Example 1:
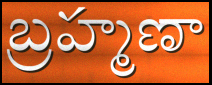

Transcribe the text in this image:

బ్రహ్మణా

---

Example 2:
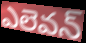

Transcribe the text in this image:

ఎలెవన్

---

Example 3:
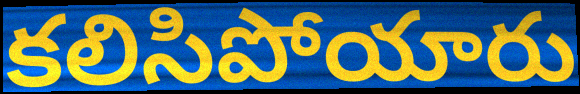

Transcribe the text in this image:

కలిసిపోయారు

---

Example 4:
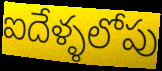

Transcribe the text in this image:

ఐదేళ్ళలోపు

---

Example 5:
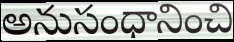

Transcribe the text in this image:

అనుసంధానించి